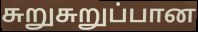
சுறுசுறுப்பான